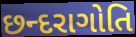
છન્દરાગોતિ